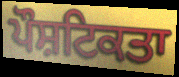
ਪੌਸ਼ਟਿਕਤਾ